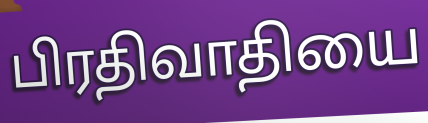
பிரதிவாதியை